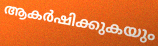
ആകർഷിക്കുകയും